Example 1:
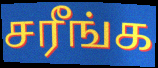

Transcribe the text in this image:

சரீங்க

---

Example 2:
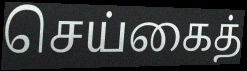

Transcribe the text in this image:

செய்கைத்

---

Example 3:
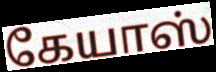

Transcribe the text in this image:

கேயாஸ்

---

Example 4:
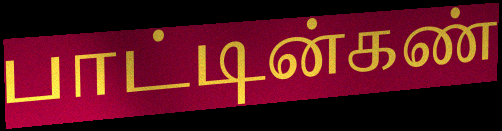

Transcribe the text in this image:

பாட்டின்கண்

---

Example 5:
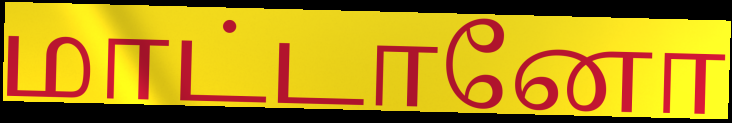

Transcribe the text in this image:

மாட்டானோ